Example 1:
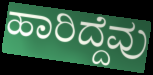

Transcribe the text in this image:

ಹಾರಿದ್ದೆವು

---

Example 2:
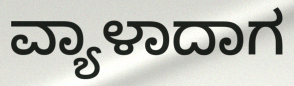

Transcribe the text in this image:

ವ್ಯಾಳಾದಾಗ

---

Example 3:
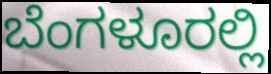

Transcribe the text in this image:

ಬೆಂಗಳೂರಲ್ಲಿ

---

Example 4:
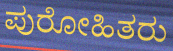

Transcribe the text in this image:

ಪುರೋಹಿತರು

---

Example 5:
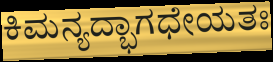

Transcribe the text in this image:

ಕಿಮನ್ಯದ್ಭಾಗಧೇಯತಃ